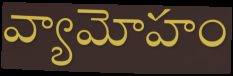
వ్యామోహం